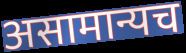
असामान्यच